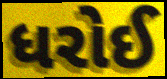
ધરોઈ